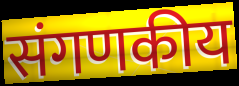
संगणकीय